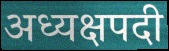
अध्यक्षपदी